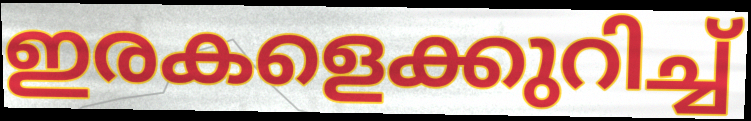
ഇരകളെക്കുറിച്ച്